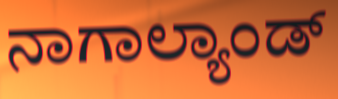
ನಾಗಾಲ್ಯಾಂಡ್